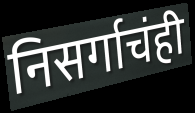
निसर्गाचंही